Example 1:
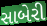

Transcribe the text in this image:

સાબેરી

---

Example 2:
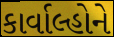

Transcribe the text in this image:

કાર્વાલ્હોને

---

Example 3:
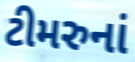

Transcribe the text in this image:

ટીમરુનાં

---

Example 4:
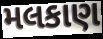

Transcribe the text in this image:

મલકાણ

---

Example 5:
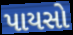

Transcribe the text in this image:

પાયસો